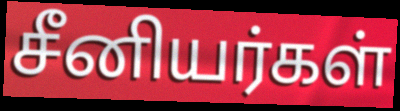
சீனியர்கள்